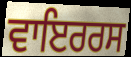
ਵਾਇਰਰਸ